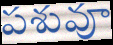
పశువూ